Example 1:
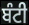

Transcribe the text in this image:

ਬੰਟੀ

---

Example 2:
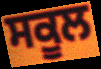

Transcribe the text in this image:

ਸਕੂਲ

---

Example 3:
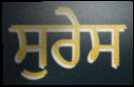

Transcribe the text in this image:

ਸੁਰੇਸ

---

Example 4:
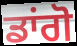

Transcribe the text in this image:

ਡਾਂਗੋ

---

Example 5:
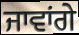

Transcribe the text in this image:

ਜਾਵਾਂਗੇ